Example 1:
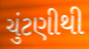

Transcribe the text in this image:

ચુંટણીથી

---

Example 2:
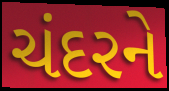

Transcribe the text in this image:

ચંદરને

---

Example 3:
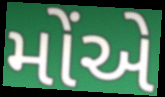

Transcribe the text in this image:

મોંએ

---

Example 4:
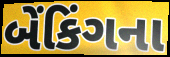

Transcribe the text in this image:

બેંકિંગના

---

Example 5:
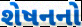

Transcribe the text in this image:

શેષનનો